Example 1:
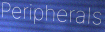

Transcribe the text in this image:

Peripherals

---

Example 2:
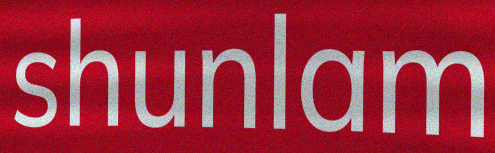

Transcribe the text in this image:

shunlam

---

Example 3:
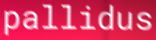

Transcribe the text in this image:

pallidus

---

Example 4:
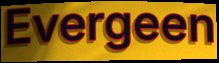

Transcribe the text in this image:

Evergeen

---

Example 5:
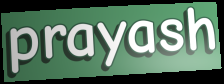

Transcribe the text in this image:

prayash